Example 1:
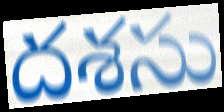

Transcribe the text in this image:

దశసు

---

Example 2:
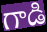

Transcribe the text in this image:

గాడి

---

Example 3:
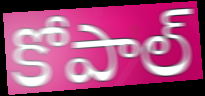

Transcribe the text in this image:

కోపాల్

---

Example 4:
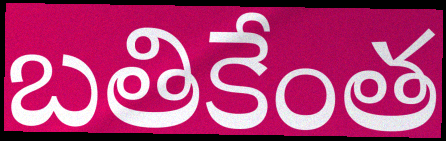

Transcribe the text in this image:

బతికేంత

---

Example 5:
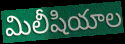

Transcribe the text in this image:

మిలీషియాల